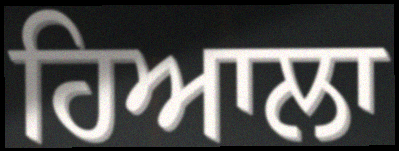
ਹਿਆਲਾ